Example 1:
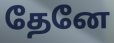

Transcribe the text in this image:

தேனே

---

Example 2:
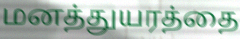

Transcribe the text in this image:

மனத்துயரத்தை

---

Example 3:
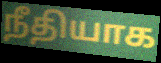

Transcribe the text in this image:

நீதியாக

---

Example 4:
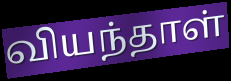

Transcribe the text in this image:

வியந்தாள்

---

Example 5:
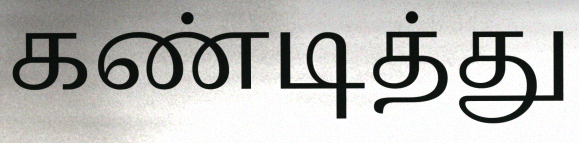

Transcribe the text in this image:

கண்டித்து